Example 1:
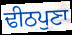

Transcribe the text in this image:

ਢੀਠਪੁਣਾ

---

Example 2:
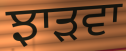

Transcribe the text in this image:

ਝਾੜਵਾ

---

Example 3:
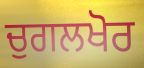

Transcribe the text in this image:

ਚੁਗਲਖੋਰ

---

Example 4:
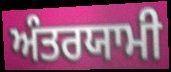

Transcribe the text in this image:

ਅੰਤਰਯਾਮੀ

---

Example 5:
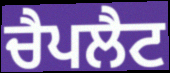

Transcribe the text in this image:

ਚੈਪਲੈਟ